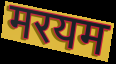
मरयम